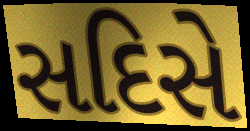
સદિસે